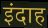
इंदाह